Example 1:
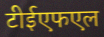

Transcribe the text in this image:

टीईएफएल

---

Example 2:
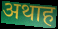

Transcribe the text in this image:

अथाह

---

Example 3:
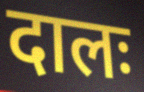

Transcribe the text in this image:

दालः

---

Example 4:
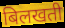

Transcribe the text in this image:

बिलखती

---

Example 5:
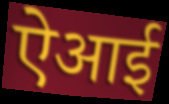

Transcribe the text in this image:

ऐआई